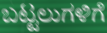
ಬಟ್ಟಲುಗಳಿಗೆ